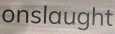
onslaught